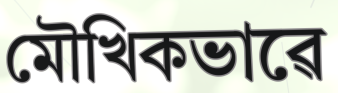
মৌখিকভাৱে